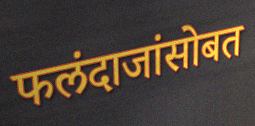
फलंदाजांसोबत